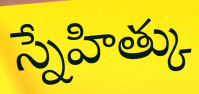
స్నేహిత్కు